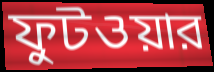
ফুটওয়ার